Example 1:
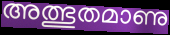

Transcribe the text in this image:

അത്ഭുതമാണു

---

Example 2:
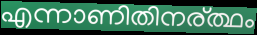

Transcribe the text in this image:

എന്നാണിതിനര്ത്ഥം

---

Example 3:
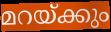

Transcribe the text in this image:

മറയ്ക്കും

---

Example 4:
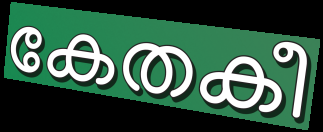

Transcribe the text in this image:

കേതകീ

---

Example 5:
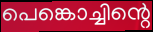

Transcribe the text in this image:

പെങ്കൊച്ചിന്റെ